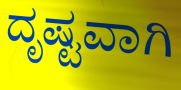
ದೃಷ್ಟವಾಗಿ